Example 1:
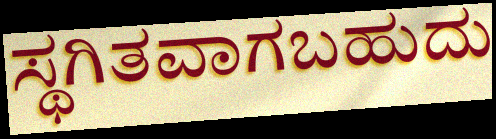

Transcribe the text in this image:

ಸ್ಥಗಿತವಾಗಬಹುದು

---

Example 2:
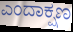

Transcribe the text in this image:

ಎಂದಾಕ್ಷಣ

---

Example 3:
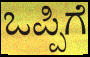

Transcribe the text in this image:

ಒಪ್ಪಿಗೆ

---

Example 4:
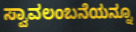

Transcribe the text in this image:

ಸ್ವಾವಲಂಬನೆಯನ್ನೂ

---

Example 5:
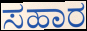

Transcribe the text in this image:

ಸಹಾರ